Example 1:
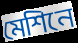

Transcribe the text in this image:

মেশিনে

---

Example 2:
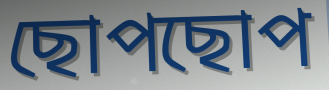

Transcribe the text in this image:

ছোপছোপ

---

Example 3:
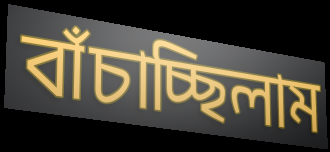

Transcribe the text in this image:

বাঁচাচ্ছিলাম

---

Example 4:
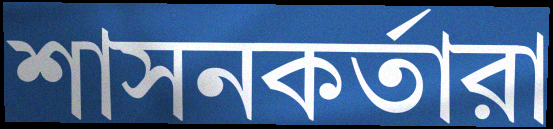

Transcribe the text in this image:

শাসনকর্তারা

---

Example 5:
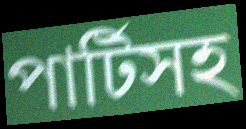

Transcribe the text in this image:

পার্টিসহ